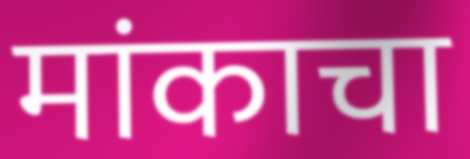
मांकाचा